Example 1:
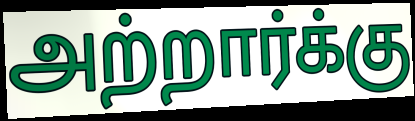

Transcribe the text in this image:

அற்றார்க்கு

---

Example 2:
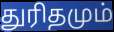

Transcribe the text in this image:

துரிதமும்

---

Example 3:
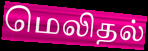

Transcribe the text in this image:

மெலிதல்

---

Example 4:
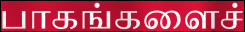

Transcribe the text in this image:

பாகங்களைச்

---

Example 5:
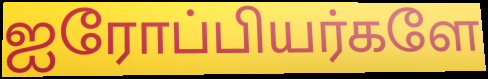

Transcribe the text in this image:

ஐரோப்பியர்களே